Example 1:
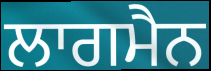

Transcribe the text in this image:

ਲਾਗਮੈਨ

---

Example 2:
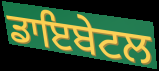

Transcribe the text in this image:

ਡਾਇਬੇਟਲ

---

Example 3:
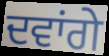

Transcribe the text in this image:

ਦਵਾਂਗੇ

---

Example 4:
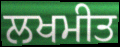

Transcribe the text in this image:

ਲਖਮੀਤ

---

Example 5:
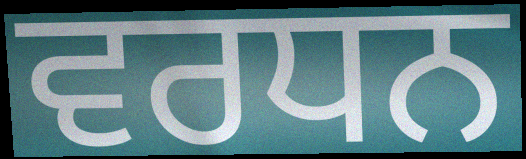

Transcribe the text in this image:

ਵਰਧਨ